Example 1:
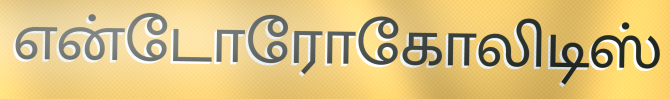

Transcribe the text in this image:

என்டோரோகோலிடிஸ்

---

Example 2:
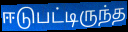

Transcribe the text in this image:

ஈடுபட்டிருந்த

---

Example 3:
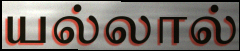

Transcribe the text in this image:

யல்லால்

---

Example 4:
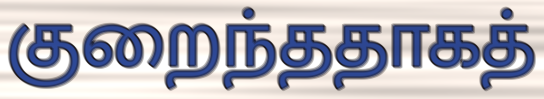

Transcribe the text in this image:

குறைந்ததாகத்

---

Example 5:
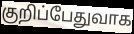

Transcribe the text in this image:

குறிப்பேதுவாக